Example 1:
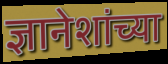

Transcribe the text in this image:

ज्ञानेशांच्या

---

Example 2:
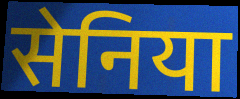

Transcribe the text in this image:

सेनिया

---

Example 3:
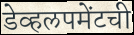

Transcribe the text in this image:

डेव्हलपमेंटची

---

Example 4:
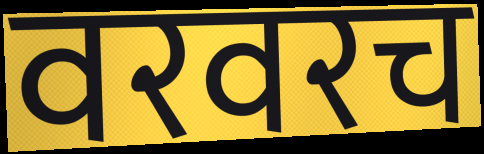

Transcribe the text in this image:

वरवरच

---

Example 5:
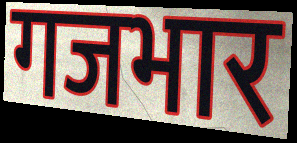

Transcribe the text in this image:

गजभार